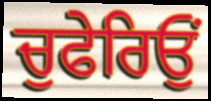
ਚੁਫੇਰਿਓੁਂ